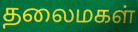
தலைமகள்